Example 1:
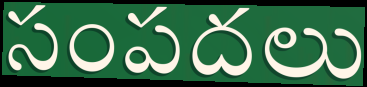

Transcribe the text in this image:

సంపదలు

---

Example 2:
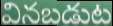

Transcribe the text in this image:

వినబడుట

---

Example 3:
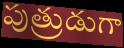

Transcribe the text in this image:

పుత్రుడుగా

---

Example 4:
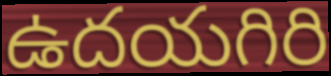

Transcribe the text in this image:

ఉదయగిరి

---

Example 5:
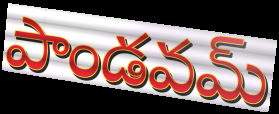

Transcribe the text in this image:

పాండవమ్